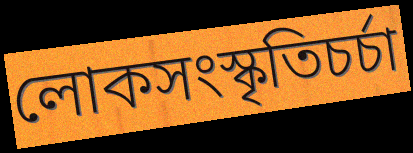
লোকসংস্কৃতিচর্চা